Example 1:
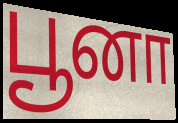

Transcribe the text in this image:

பூனா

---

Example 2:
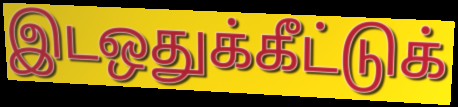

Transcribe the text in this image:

இடஒதுக்கீட்டுக்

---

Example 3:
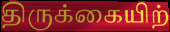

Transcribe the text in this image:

திருக்கையிற்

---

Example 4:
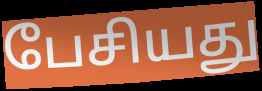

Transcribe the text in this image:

பேசியது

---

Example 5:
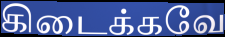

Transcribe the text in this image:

கிடைக்கவே